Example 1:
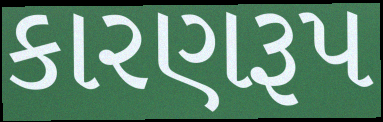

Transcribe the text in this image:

કારણરૂપ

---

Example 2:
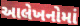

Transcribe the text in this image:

આલેખનોમાં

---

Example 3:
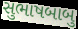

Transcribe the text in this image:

સુભાષબાબુ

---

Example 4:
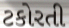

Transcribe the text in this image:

ટકોરતી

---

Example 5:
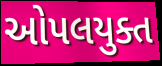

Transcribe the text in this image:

ઓપલયુક્ત